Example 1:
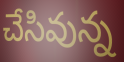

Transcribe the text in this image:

చేసివున్న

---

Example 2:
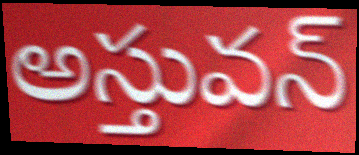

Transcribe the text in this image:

అస్తువన్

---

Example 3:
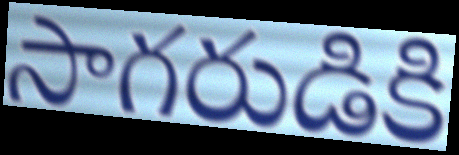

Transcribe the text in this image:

సాగరుడికి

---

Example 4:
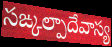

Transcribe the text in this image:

సఙ్కల్పాదేవాస్య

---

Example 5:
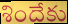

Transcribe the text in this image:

శిందేకు